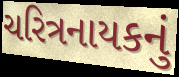
ચરિત્રનાયકનું